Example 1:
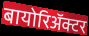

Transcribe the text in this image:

बायोरिॲक्टर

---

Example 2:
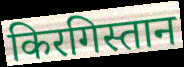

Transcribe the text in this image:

किरगिस्तान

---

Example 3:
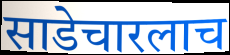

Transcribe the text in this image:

साडेचारलाच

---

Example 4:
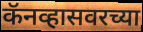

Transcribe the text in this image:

कॅनव्हासवरच्या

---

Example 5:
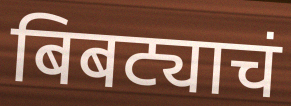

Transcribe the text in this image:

बिबट्याचं